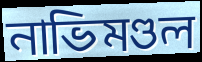
নাভিমণ্ডল